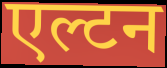
एल्टन